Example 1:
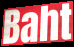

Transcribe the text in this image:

Baht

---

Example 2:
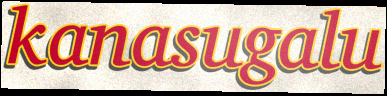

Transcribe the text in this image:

kanasugalu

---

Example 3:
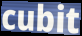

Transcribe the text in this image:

cubit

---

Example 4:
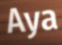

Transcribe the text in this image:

Aya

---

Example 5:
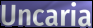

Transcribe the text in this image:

Uncaria